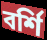
বর্শি